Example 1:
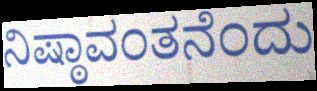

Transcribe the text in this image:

ನಿಷ್ಠಾವಂತನೆಂದು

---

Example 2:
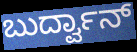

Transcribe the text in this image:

ಬುರ್ದ್ವಾನ್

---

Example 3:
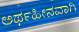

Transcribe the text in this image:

ಅರ್ಥಹೀನವಾಗಿ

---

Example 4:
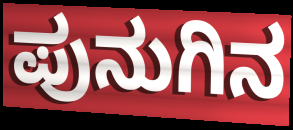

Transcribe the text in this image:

ಪುನುಗಿನ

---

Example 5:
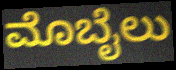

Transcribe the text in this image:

ಮೊಬೈಲು